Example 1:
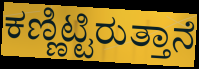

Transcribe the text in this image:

ಕಣ್ಣಿಟ್ಟಿರುತ್ತಾನೆ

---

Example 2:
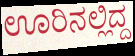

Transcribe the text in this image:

ಊರಿನಲ್ಲಿದ್ದ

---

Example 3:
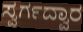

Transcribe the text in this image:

ಸ್ವರ್ಗದ್ವಾರ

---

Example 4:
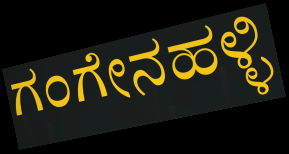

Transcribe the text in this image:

ಗಂಗೇನಹಳ್ಳಿ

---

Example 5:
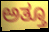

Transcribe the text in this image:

ಅತ್ತೂ